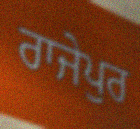
ਰਾਜੇਪੁਰ